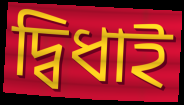
দ্বিধাই